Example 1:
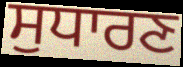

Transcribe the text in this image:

ਸੁਧਾਰਣ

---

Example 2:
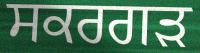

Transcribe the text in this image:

ਸਕਰਗੜ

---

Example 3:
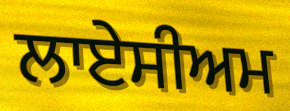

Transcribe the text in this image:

ਲਾਏਸੀਅਮ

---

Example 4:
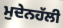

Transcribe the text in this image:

ਮੁਦੇਨਹੱਲੀ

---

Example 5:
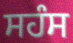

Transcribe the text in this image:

ਸਹੰਸ